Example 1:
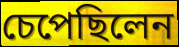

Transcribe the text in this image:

চেপেছিলেন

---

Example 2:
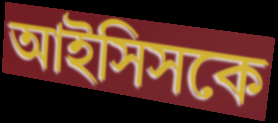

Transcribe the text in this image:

আইসিসকে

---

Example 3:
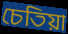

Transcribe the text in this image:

চেতিয়া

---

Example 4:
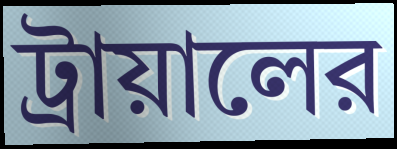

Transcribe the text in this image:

ট্রায়ালের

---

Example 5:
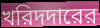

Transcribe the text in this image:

খরিদদারের